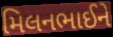
મિલનભાઈને